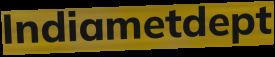
Indiametdept